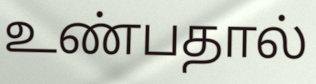
உண்பதால்